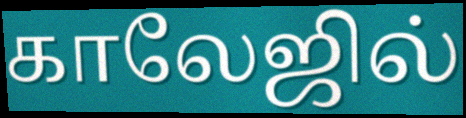
காலேஜில்